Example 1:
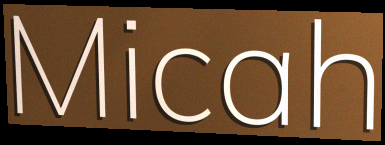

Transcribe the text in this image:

Micah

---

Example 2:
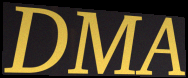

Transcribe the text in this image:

DMA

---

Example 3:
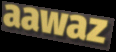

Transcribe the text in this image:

aawaz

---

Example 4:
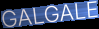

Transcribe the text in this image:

GALGALE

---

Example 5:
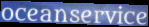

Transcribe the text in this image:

oceanservice